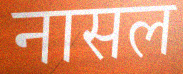
नासल